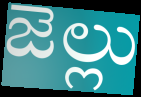
జెల్లు